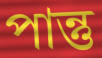
পান্তু